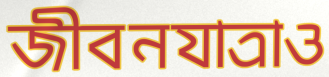
জীবনযাত্রাও